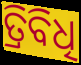
ତ୍ରିବିଧି